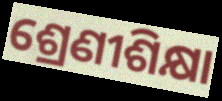
ଶ୍ରେଣୀଶିକ୍ଷା